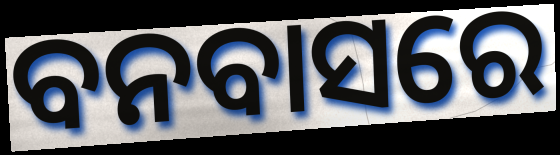
ବନବାସରେ